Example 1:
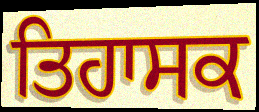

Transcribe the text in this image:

ਤਿਹਾਸਕ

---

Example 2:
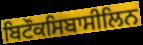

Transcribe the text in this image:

ਬਿਟੌਕਸਿਬਾਸੀਲਿਨ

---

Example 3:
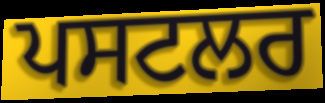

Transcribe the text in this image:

ਪਸਟਲਰ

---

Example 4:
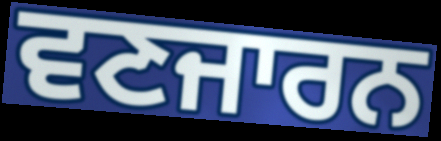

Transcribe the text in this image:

ਵਣਜਾਰਨ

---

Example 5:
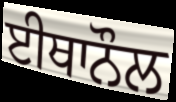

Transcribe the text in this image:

ਈਥਾਨੌਲ